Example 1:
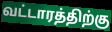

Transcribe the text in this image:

வட்டாரத்திற்கு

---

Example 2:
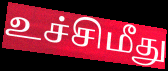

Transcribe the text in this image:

உச்சிமீது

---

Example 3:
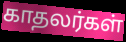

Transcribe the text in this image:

காதலர்கள்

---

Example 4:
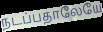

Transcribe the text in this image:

நடப்பதாலேயே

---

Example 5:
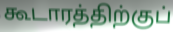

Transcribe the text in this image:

கூடாரத்திற்குப்